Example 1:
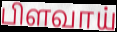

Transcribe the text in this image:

பிளவாய்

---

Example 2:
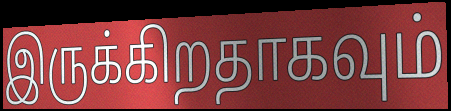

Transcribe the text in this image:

இருக்கிறதாகவும்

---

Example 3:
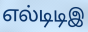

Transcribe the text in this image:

எல்டிடிஇ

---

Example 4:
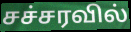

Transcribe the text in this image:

சச்சரவில்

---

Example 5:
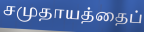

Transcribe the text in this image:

சமுதாயத்தைப்